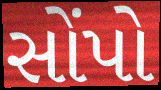
સોંપો